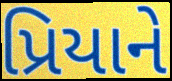
પ્રિયાને